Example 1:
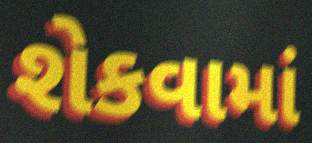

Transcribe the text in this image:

શેકવામાં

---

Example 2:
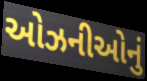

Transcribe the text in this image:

ઓઝનીઓનું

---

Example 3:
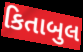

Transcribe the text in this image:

કિતાબુલ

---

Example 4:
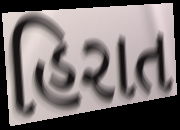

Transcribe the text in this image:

હિરાત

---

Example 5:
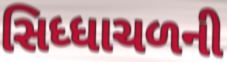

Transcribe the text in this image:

સિધ્ધાચળની